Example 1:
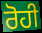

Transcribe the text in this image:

ਰੋਹੀ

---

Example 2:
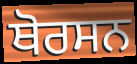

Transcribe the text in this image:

ਥੋਰਸਨ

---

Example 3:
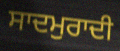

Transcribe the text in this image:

ਸਾਦਮੁਰਾਦੀ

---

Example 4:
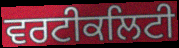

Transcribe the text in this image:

ਵਰਟੀਕਲਿਟੀ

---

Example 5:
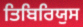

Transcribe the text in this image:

ਤਿਬਿਰਿਯੁਸ